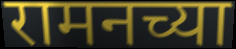
रामनच्या